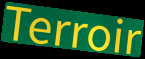
Terroir